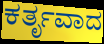
ಕರ್ತೃವಾದ